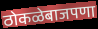
ठोकळेबाजपणा